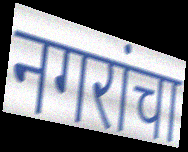
नगरांचा